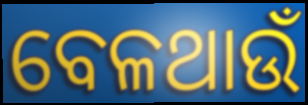
ବେଳଥାଉଁ